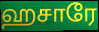
ஹசாரே